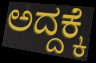
ಅದ್ದಕ್ಕೆ